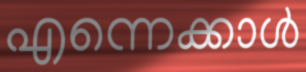
എന്നെക്കാൾ